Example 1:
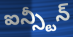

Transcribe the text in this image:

ఐన్స్టీన్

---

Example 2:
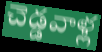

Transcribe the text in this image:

చెడ్డవాళ్ల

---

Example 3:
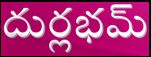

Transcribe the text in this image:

దుర్లభమ్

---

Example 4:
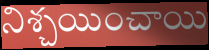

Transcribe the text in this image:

నిశ్చయించాయి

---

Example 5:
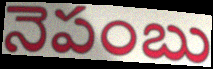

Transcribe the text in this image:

నెపంబు